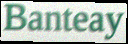
Banteay